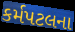
કર્મપટલના